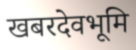
खबरदेवभूमि